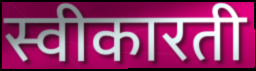
स्वीकारती